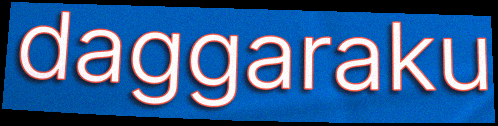
daggaraku